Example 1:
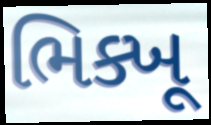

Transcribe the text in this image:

ભિક્ખૂ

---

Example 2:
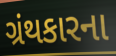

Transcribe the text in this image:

ગ્રંથકારના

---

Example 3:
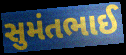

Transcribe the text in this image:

સુમંતભાઈ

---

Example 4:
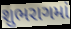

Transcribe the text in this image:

શુભરાગમાં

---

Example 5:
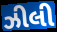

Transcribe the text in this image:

ઝીલી